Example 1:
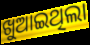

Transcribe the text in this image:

ଖୁଆଇଥିଲା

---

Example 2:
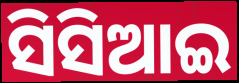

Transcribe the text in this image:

ସିସିଆଇ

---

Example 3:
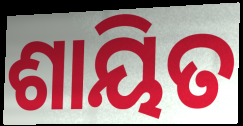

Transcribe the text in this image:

ଶାୟିତ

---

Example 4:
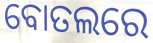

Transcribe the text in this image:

ବୋତଲରେ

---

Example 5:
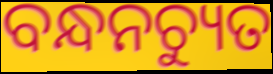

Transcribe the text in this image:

ବନ୍ଧନଚ୍ୟୁତ